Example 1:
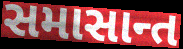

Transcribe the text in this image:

સમાસાન્ત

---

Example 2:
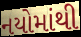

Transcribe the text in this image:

નયોમાંથી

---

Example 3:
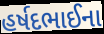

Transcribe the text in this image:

હર્ષદભાઈના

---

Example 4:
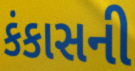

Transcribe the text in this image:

કંકાસની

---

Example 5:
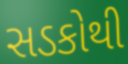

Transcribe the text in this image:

સડકોથી